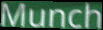
Munch